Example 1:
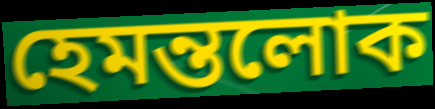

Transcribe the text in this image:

হেমন্তলোক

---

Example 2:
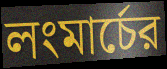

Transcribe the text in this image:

লংমার্চের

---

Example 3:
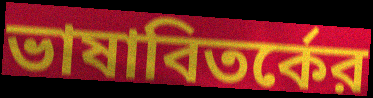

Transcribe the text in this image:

ভাষাবিতর্কের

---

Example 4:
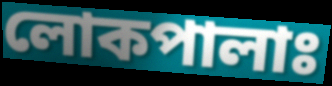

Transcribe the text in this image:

লোকপালাঃ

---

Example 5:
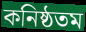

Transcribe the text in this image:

কনিষ্ঠতম